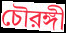
চৌরঙ্গী